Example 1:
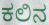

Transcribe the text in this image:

ಕಲಿನ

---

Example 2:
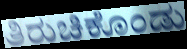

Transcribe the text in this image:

ತಿರುಚಿಕೊಂಡು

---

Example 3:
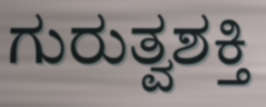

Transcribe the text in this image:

ಗುರುತ್ವಶಕ್ತಿ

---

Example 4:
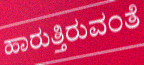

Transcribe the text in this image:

ಹಾರುತ್ತಿರುವಂತೆ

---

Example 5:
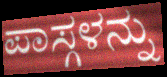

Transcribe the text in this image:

ಪಾಸ್ಗಳನ್ನು